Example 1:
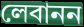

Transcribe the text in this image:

লেবানন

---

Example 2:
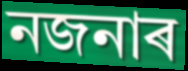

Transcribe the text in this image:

নজনাৰ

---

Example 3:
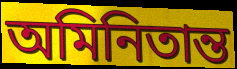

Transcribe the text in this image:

অমিনিতান্ত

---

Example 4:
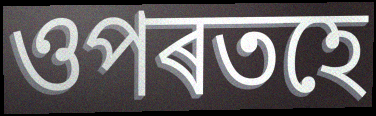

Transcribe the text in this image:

ওপৰতহে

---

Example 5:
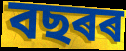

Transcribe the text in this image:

বছৰৰ